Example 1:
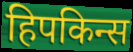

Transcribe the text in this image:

हिपकिन्स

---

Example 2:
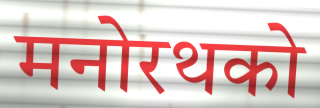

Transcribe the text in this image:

मनोरथको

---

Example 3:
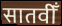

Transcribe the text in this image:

सातवीँ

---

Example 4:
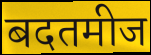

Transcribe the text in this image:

बदतमीज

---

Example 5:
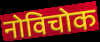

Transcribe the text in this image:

नोविचोक